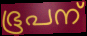
ഭൂപന്